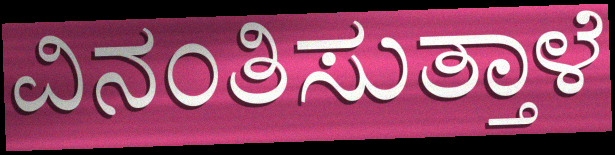
ವಿನಂತಿಸುತ್ತಾಳೆ